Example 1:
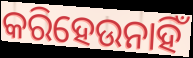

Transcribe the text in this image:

କରିହେଉନାହିଁ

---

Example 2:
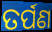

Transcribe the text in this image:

ତର୍ପଣ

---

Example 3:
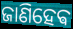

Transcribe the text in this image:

ଜାଣିହେଵ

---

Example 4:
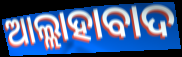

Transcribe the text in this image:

ଆଲ୍ଲାହାବାଦ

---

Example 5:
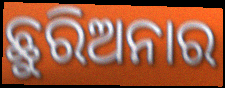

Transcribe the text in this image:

ଛୁରିଅନାର